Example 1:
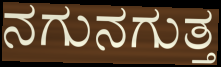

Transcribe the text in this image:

ನಗುನಗುತ್ತ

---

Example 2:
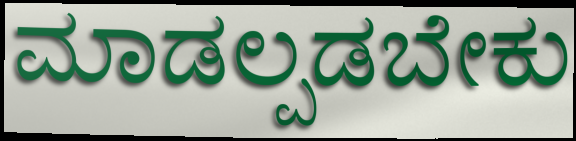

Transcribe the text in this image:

ಮಾಡಲ್ಪಡಬೇಕು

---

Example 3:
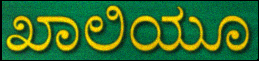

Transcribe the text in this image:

ಖಾಲಿಯೂ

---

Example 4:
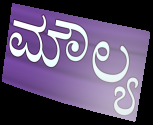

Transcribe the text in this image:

ಮೌಲ್ಯ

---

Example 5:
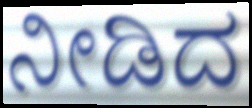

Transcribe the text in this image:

ನೀಡಿದ